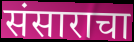
संसाराचा